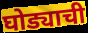
घोड्याची